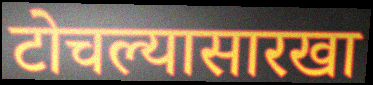
टोचल्यासारखा